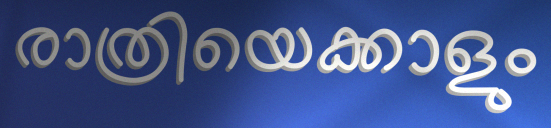
രാത്രിയെക്കാളും